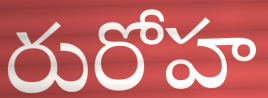
రురోహ